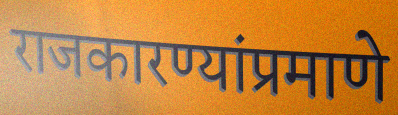
राजकारण्यांप्रमाणे